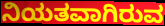
ನಿಯತವಾಗಿರುವ